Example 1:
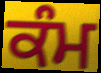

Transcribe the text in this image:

ਕੰਮ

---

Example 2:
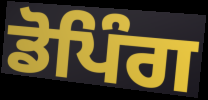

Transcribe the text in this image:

ਡੋਪਿੰਗ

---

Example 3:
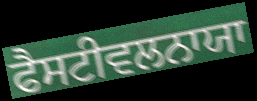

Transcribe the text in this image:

ਫੈਸਟੀਵਲਨਾਯਾ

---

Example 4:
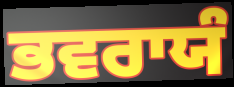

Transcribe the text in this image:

ਭਵਰਾਯੰ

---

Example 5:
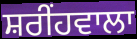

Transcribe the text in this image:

ਸ਼ਰੀਂਹਵਾਲਾ